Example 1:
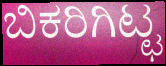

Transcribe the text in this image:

ಬಿಕರಿಗಿಟ್ಟ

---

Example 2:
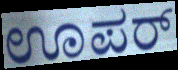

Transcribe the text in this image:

ಊಪರ್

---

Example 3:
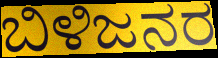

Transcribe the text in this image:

ಬಿಳಿಜನರ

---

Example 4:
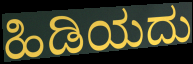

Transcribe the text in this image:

ಹಿಡಿಯದು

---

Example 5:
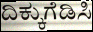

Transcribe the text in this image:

ದಿಕ್ಕುಗೆಡಿಸಿ